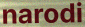
narodi